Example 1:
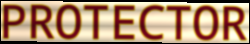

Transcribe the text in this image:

PROTECTOR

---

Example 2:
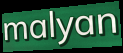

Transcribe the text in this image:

malyan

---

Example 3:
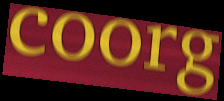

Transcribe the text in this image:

coorg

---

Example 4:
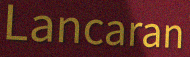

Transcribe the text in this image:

Lancaran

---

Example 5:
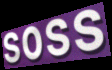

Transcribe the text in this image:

soss